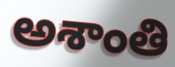
అశాంతి